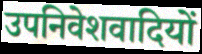
उपनिवेशवादियों